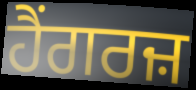
ਹੈਂਗਰਜ਼